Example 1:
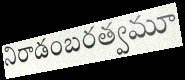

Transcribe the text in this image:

నిరాడంబరత్వమూ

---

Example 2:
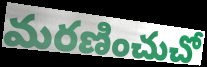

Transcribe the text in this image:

మరణించుచో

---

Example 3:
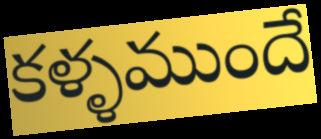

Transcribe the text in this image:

కళ్ళముందే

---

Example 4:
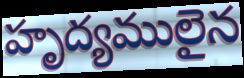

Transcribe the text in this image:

హృద్యములైన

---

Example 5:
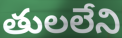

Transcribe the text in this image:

తులలేని